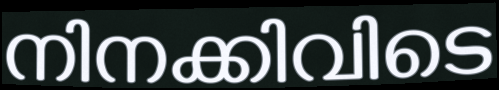
നിനക്കിവിടെ